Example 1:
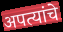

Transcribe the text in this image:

अपत्यांचे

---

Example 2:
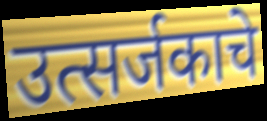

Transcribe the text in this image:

उत्सर्जकाचे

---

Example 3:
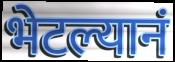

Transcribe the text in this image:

भेटल्यानं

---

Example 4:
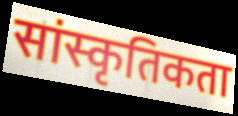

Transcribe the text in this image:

सांस्कृतिकता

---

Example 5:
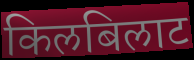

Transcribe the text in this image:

किलबिलाट